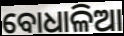
ବୋଧାଳିଆ